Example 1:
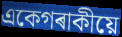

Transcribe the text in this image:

একেগৰাকীয়ে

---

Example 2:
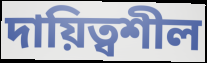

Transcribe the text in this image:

দায়িত্বশীল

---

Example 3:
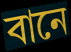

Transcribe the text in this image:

বানে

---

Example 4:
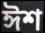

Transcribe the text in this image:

ঈশ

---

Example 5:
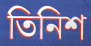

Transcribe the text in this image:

তিনিশ